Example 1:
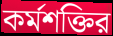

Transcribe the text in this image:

কর্মশক্তির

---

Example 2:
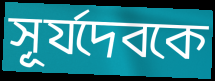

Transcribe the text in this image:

সূর্যদেবকে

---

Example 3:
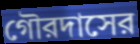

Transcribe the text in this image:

গৌরদাসের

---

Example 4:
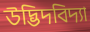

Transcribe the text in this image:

উদ্ভিদবিদ্যা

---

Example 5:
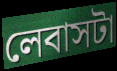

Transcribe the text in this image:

লেবাসটা